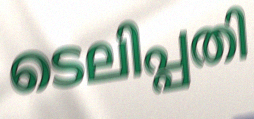
ടെലിപ്പതി